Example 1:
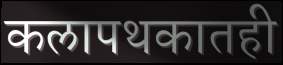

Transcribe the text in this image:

कलापथकातही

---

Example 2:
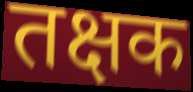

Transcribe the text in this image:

तक्षक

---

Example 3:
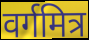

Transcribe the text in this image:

वर्गमित्र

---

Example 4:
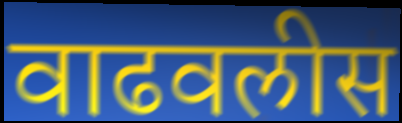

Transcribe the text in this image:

वाढवलीस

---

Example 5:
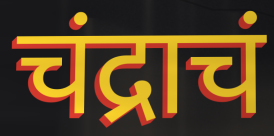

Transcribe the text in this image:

चंद्राचं